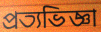
প্রত্যভিজ্ঞা